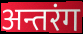
अन्तरंग